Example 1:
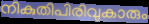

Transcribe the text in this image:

നികുതിപിരിവുകാരും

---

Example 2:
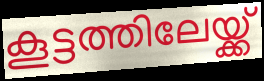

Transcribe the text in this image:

കൂട്ടത്തിലേയ്ക്ക്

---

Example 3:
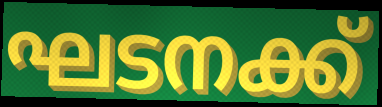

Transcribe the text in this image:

ഘടനക്ക്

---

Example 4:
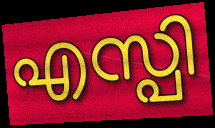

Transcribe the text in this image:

എസ്പി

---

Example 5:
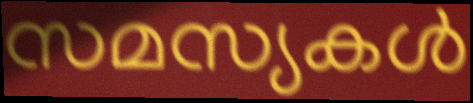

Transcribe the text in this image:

സമസ്യകൾ